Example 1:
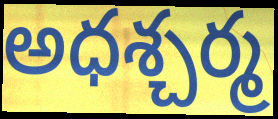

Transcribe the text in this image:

అధశ్చర్మ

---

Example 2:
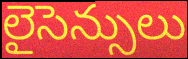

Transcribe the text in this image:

లైసెన్సులు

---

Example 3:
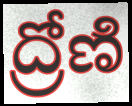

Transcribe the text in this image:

ద్రోణి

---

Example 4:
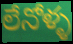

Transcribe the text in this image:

లేనోళ్ళ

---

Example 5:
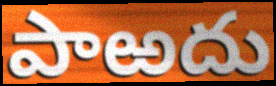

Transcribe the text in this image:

పాఱదు